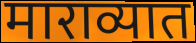
माराव्यात